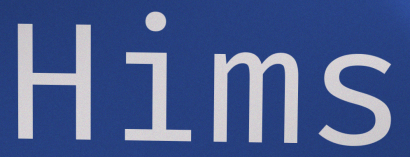
Hims